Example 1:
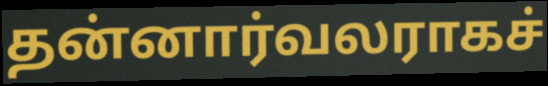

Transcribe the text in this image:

தன்னார்வலராகச்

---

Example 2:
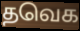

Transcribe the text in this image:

தவெக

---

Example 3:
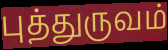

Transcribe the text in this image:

புத்துருவம்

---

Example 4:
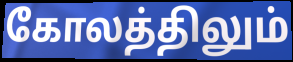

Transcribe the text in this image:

கோலத்திலும்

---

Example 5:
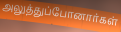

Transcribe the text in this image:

அலுத்துப்போனார்கள்